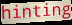
hinting